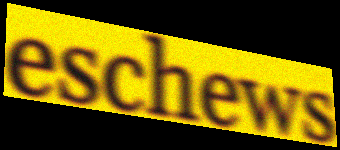
eschews